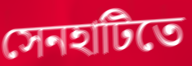
সেনহাটিতে